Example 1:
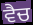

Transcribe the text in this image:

ਵੈਚ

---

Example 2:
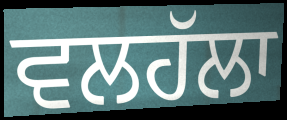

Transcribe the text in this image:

ਵਲਹੱਲਾ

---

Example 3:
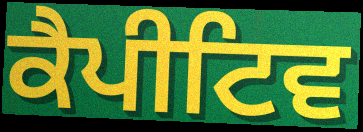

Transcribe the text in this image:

ਕੈਪੀਟਿਵ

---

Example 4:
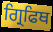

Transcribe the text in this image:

ਗ੍ਰਿਫਿਥ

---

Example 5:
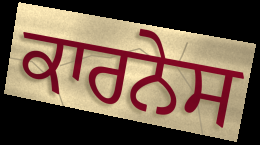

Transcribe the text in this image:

ਕਾਰਨੇਸ